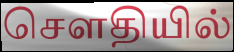
செளதியில்